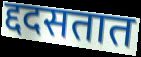
द्ददसतात